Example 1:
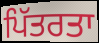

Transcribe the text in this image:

ਪਿੱਤਰਤਾ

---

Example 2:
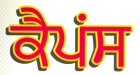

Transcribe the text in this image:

ਕੈਪਂਸ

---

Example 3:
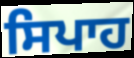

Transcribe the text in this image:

ਸਿਪਾਹ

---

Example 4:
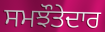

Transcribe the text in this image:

ਸਮਝੌਤੇਦਾਰ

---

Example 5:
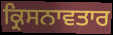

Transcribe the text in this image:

ਕ੍ਰਿਸਨਾਵਤਾਰ